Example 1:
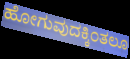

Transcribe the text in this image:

ಹೋಗುವುದಕ್ಕಿಂತಲೂ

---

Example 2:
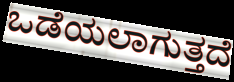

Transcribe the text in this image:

ಒಡೆಯಲಾಗುತ್ತದೆ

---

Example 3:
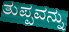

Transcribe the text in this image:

ತುಪ್ಪವನ್ನು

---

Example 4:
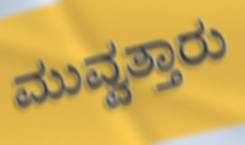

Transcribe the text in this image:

ಮುವ್ವತ್ತಾರು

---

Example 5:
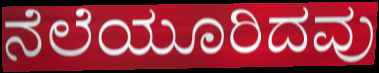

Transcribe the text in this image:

ನೆಲೆಯೂರಿದವು